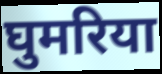
घुमरिया